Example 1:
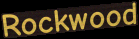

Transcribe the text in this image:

Rockwood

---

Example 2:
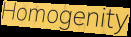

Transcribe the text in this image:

Homogenity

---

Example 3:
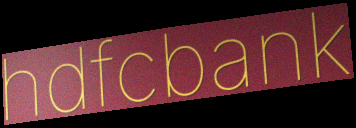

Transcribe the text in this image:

hdfcbank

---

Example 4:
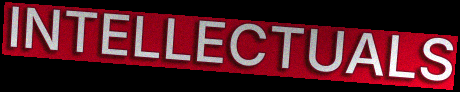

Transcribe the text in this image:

INTELLECTUALS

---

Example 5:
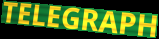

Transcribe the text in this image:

TELEGRAPH